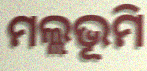
ମଲ୍ଲଭୂମି